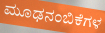
ಮೂಢನಂಬಿಕೆಗಳ